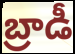
బ్రాడీ